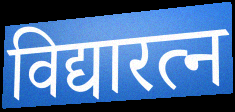
विद्यारत्न